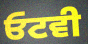
ਓਟਵੀ